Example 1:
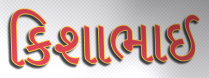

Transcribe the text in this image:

કિશાભાઈ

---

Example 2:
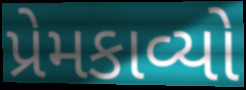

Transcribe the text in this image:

પ્રેમકાવ્યો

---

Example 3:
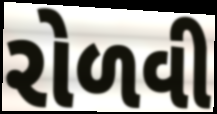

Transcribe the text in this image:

રોળવી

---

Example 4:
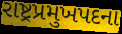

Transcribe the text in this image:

રાષ્ટ્રપ્રમુખપદના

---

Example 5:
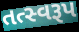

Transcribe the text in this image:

તત્સ્વરૂપ